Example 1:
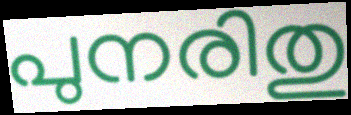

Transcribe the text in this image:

പുനരിതു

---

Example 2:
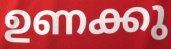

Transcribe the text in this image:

ഉണക്കു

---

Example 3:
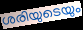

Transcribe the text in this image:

ശരിയുടെയും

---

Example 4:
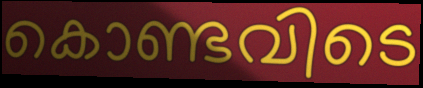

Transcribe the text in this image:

കൊണ്ടവിടെ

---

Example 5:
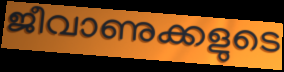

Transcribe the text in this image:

ജീവാണുക്കളുടെ